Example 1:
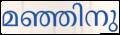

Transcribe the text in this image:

മഞ്ഞിനു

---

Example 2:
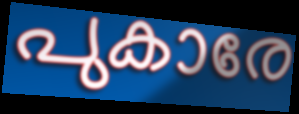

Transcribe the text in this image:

പുകാരേ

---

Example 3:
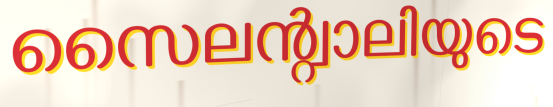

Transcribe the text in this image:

സൈലന്റ്വാലിയുടെ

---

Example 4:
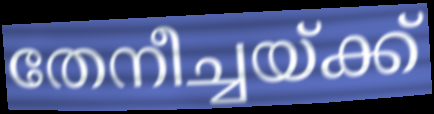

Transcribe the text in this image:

തേനീച്ചയ്ക്ക്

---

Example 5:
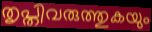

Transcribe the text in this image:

തൃപ്തിവരുത്തുകയും